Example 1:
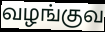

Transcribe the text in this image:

வழங்குவ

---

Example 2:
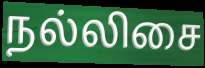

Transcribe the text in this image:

நல்லிசை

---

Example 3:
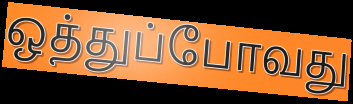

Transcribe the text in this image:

ஒத்துப்போவது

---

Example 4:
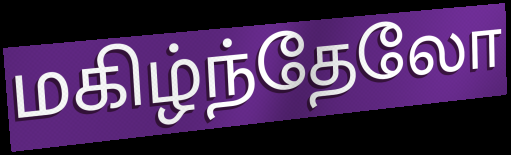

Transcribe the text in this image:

மகிழ்ந்தேலோ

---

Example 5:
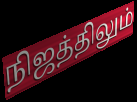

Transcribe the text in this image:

நிஜத்திலும்